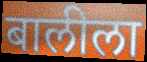
बालीला